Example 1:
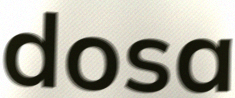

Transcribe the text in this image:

dosa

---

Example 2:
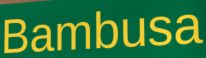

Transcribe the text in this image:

Bambusa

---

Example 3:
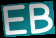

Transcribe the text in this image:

EB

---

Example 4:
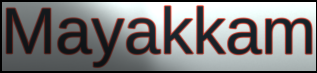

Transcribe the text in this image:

Mayakkam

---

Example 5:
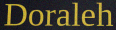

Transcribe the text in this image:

Doraleh